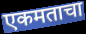
एकमताचा